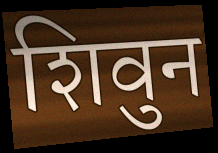
शिवुन